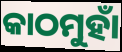
କାଠମୁହାଁ